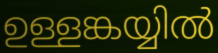
ഉള്ളങ്കയ്യിൽ